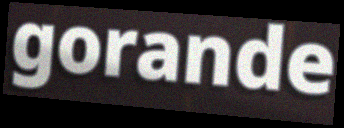
gorande